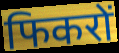
फिकरों